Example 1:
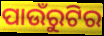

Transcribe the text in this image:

ପାଉଁରୁଟିର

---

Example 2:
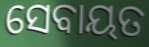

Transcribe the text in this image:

ସେବାୟତ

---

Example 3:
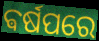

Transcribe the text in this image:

ଵର୍ଷପରେ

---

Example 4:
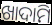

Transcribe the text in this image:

ଖାଦାମି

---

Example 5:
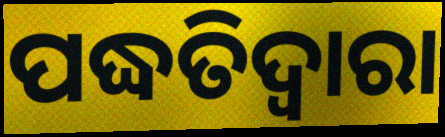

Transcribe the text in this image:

ପଦ୍ଧତିଦ୍ଵାରା